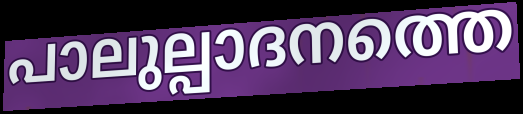
പാലുല്പാദനത്തെ